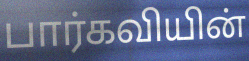
பார்கவியின்